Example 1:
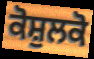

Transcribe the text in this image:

ਕੋਸ਼ੁਲਕੋ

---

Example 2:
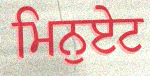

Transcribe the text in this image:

ਮਿਨੁਏਟ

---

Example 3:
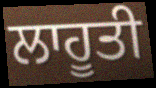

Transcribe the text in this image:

ਲਾਹੂਤੀ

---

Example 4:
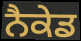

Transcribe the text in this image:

ਨੈਕੇਡ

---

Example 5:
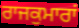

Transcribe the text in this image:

ਰਾਜਕੁਮਾਰਾਂ